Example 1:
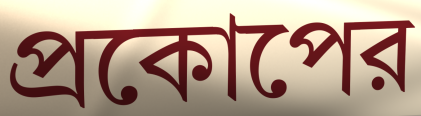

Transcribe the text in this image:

প্রকোপের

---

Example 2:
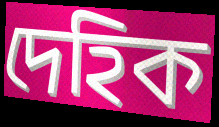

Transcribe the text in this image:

দেহিক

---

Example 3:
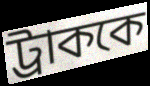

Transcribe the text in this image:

ট্রাককে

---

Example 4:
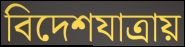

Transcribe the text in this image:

বিদেশযাত্রায়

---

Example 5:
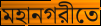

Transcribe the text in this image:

মহানগরীতে